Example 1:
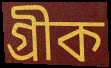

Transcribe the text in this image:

গ্রীক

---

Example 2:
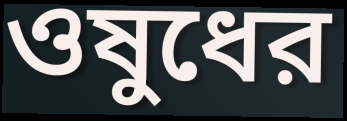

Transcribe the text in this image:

ওষুধের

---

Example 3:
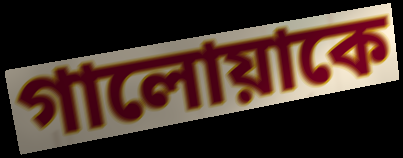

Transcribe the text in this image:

গালোয়াকে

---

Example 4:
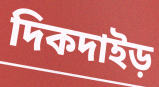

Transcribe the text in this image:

দিকদাইড়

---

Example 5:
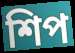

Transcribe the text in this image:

শিপ